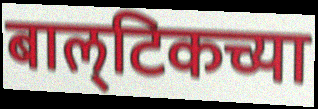
बाल्टिकच्या